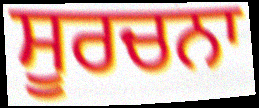
ਸੂਰਚਨਾ